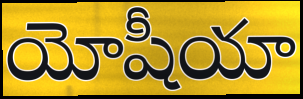
యోషీయా